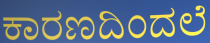
ಕಾರಣದಿಂದಲೆ